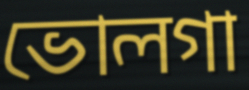
ভোলগা